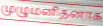
முழுமனிதனாக